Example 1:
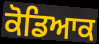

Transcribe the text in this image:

ਕੋਡਿਆਕ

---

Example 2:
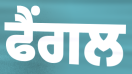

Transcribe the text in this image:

ਫੈਂਗਲ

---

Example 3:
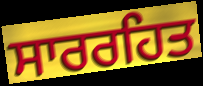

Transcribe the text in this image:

ਸਾਰਰਹਿਤ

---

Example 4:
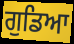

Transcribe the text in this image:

ਗੁਡਿਆ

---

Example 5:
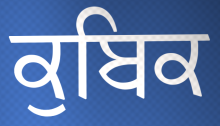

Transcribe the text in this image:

ਕੁਬਿਕ